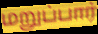
மறுப்பார்